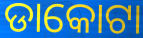
ଡାକୋଟା